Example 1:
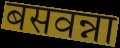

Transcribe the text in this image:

बसवन्ना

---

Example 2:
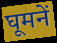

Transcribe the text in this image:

घूमनें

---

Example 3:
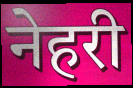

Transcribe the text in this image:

नेहरी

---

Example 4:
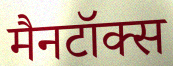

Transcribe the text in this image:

मैनटॉक्स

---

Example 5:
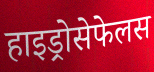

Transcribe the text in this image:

हाइड्रोसेफेलस